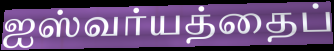
ஐஸ்வர்யத்தைப்